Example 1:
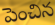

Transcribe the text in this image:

పెంచిన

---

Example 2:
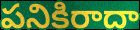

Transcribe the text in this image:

పనికిరాదా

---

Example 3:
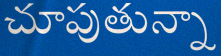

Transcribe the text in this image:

చూపుతున్నా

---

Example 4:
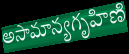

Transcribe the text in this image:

అసామాన్యగృహిణి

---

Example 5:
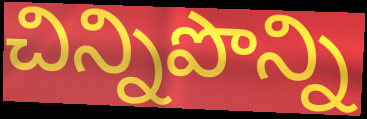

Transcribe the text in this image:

చిన్నిపొన్ని